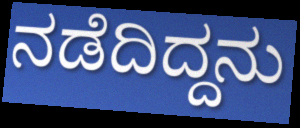
ನಡೆದಿದ್ದನು